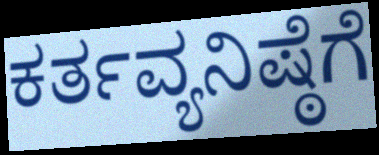
ಕರ್ತವ್ಯನಿಷ್ಠೆಗೆ